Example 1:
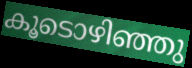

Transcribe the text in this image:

കൂടൊഴിഞ്ഞു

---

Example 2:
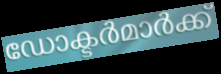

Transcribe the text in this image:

ഡോക്ടർമാർക്ക്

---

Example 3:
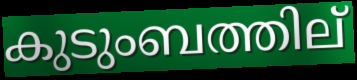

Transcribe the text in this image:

കുടുംബത്തില്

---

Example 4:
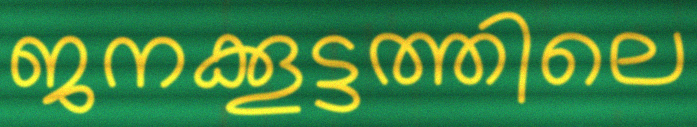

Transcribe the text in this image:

ജനക്കൂട്ടത്തിലെ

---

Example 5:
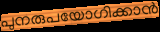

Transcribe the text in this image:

പുനരുപയോഗിക്കാൻ